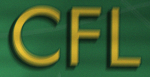
CFL